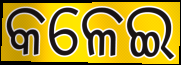
କଳେଇ